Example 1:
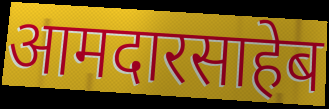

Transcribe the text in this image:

आमदारसाहेब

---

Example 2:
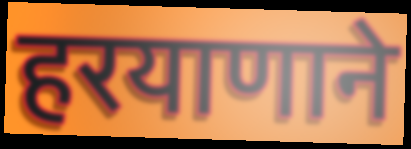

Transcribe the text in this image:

हरयाणाने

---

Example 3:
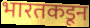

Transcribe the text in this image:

भारतकडून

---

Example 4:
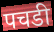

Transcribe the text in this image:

पचडी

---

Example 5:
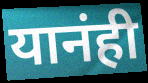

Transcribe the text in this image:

यानंही